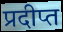
प्रदीप्त